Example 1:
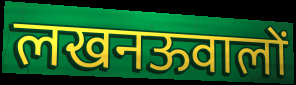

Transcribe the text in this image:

लखनऊवालों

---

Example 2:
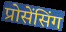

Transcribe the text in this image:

प्रोसेंसिंग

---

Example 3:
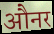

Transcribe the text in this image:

औनर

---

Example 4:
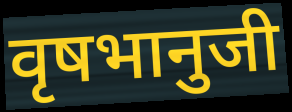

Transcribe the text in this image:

वृषभानुजी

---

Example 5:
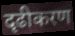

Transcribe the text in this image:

दृढीकरण